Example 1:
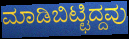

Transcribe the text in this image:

ಮಾಡಿಬಿಟ್ಟಿದ್ದವು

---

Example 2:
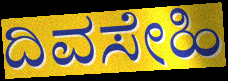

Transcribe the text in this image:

ದಿವಸೇಹಿ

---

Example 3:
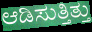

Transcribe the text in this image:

ಆಡಿಸುತ್ತಿತ್ತು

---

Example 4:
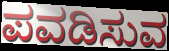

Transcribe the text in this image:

ಪವಡಿಸುವ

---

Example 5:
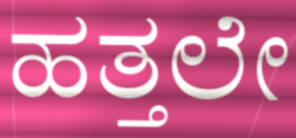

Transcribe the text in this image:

ಹತ್ತಲೇ